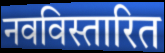
नवविस्तारित